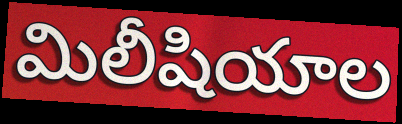
మిలీషియాల